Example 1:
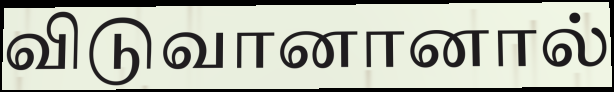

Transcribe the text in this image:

விடுவானானால்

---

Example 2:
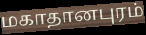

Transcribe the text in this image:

மகாதானபுரம்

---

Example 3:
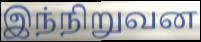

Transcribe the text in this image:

இந்நிறுவன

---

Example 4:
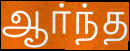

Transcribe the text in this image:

ஆர்ந்த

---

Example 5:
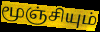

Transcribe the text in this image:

மூஞ்சியும்